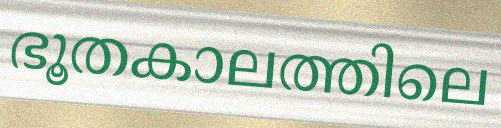
ഭൂതകാലത്തിലെ